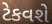
ટેકવશે